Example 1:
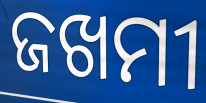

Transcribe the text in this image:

ଜଖମୀ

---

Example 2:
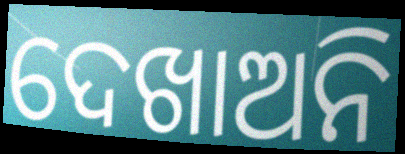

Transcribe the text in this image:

ଦେଖାଅନି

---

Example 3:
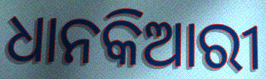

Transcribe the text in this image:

ଧାନକିଆରୀ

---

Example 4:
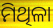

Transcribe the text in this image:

ମିଥିଳା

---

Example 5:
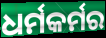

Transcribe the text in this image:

ଧର୍ମକର୍ମର